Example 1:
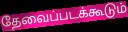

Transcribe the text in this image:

தேவைப்படக்கூடும்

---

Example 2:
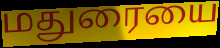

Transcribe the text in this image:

மதுரையை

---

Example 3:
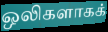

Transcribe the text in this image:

ஒலிகளாகக்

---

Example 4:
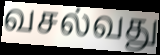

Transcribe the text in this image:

வசல்வது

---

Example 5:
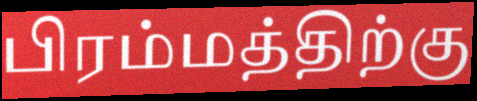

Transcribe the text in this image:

பிரம்மத்திற்கு